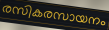
രസികരസായനം